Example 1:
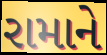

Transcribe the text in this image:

રામાને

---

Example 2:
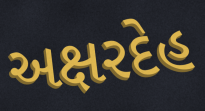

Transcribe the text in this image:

અક્ષરદેહ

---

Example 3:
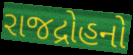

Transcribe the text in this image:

રાજદ્રોહનો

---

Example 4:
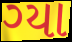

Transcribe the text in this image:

ગ્યા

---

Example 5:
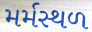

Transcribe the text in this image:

મર્મસ્થળ